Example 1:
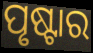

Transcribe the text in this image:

ପୃଷ୍ଟାର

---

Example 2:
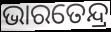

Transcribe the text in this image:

ଭାରତେନ୍ଦ୍ର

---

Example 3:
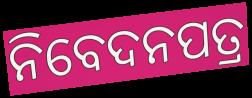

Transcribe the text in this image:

ନିବେଦନପତ୍ର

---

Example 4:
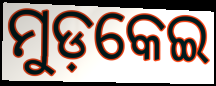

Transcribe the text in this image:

ମୁଡ଼କେଇ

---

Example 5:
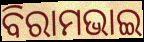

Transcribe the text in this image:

ବିରାମଭାଇ